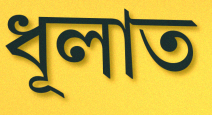
ধূলাত